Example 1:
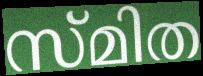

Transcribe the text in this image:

സ്മിത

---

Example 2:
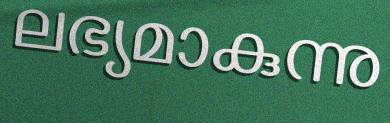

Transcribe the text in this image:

ലഭ്യമാകുന്നു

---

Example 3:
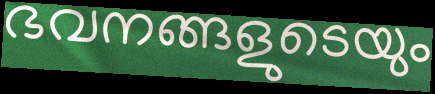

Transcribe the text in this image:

ഭവനങ്ങളുടെയും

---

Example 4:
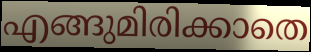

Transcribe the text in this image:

എങ്ങുമിരിക്കാതെ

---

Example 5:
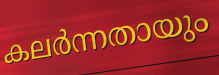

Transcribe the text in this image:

കലർന്നതായും